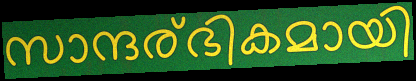
സാന്ദര്ഭികമായി